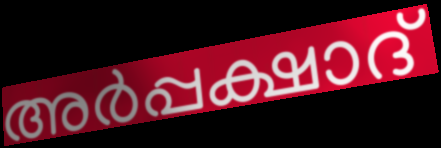
അർപ്പക്ഷാദ്